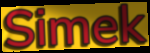
Simek